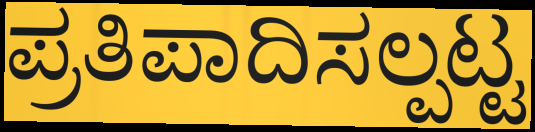
ಪ್ರತಿಪಾದಿಸಲ್ಪಟ್ಟ